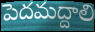
పెదమద్దాలి